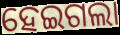
ହେଇଗଲା